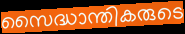
സൈദ്ധാന്തികരുടെ